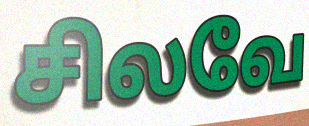
சிலவே